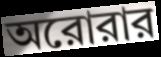
অরোরার